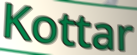
Kottar